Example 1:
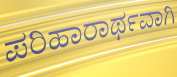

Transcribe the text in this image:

ಪರಿಹಾರಾರ್ಥವಾಗಿ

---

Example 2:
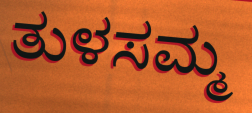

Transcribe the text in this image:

ತುಳಸಮ್ಮ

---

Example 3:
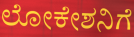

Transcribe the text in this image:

ಲೋಕೇಶನಿಗೆ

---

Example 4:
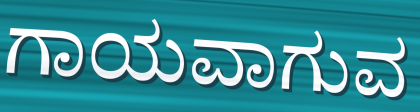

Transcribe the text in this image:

ಗಾಯವಾಗುವ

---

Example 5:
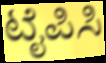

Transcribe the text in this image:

ಟೈಪಿಸಿ